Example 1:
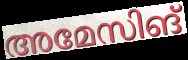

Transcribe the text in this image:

അമേസിങ്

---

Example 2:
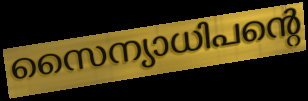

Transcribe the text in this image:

സൈന്യാധിപന്റെ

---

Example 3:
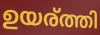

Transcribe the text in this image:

ഉയര്ത്തി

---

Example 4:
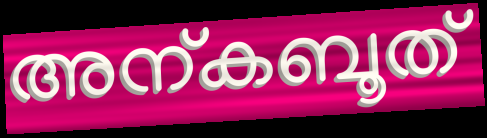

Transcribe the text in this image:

അന്കബൂത്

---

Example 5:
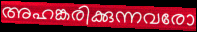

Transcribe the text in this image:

അഹങ്കരിക്കുന്നവരോ